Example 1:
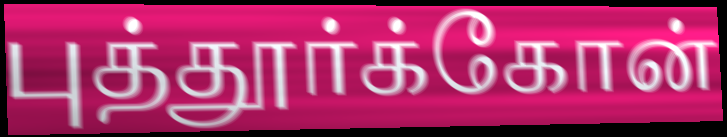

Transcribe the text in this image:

புத்தூர்க்கோன்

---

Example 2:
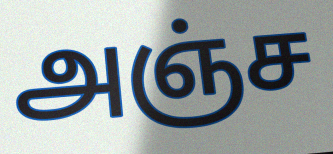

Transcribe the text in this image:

அஞ்ச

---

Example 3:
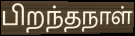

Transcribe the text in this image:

பிறந்தநாள்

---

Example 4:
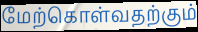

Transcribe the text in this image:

மேற்கொள்வதற்கும்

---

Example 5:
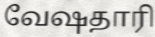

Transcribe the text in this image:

வேஷதாரி